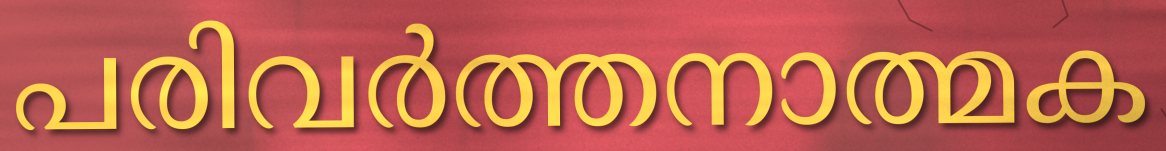
പരിവർത്തനാത്മക